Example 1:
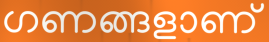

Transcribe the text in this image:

ഗണങ്ങളാണ്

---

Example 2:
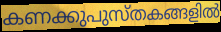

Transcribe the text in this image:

കണക്കുപുസ്തകങ്ങളിൽ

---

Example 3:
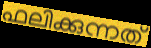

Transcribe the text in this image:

ഫലിക്കുന്നത്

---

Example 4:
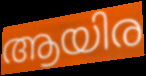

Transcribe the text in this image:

ആയിര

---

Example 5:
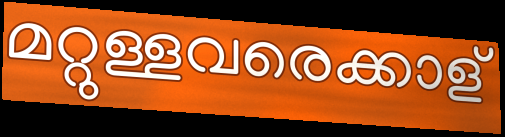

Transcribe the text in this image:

മറ്റുള്ളവരെക്കാള്